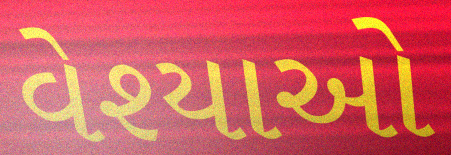
વેશ્યાઓ